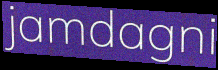
jamdagni